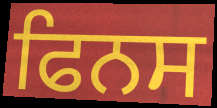
ਫਿਨਸ